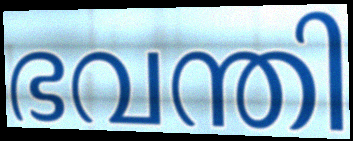
ഭവന്തി